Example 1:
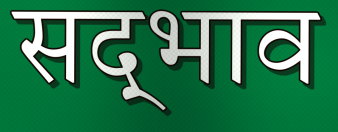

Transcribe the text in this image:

सद्‍भाव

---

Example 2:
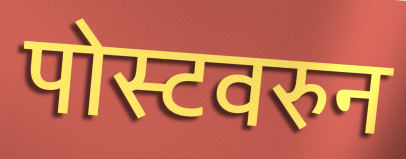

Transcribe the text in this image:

पोस्टवरुन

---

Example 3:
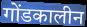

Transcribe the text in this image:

गोंडकालीन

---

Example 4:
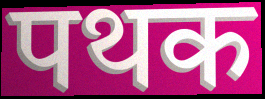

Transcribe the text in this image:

पथक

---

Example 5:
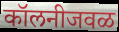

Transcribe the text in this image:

कॉलनीजवळ